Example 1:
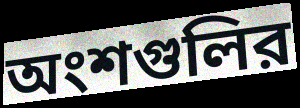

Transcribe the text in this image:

অংশগুলির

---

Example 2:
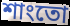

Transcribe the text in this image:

শাংতো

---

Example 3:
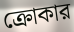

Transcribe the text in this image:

ক্রোকার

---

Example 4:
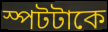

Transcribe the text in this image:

স্পটটাকে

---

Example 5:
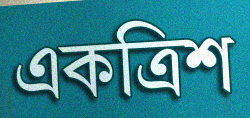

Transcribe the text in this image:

একত্রিশ